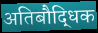
अतिबौद्धिक